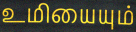
உமியையும்